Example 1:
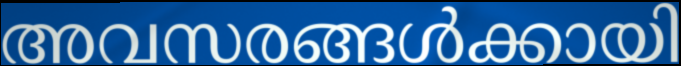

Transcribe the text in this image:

അവസരങ്ങൾക്കായി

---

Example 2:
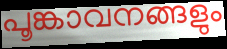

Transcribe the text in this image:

പൂങ്കാവനങ്ങളും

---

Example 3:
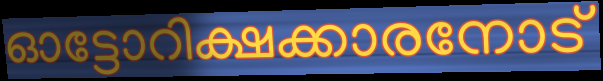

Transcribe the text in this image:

ഓട്ടോറിക്ഷക്കാരനോട്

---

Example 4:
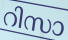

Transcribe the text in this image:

റിസാ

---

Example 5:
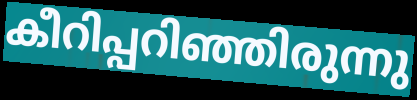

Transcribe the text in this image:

കീറിപ്പറിഞ്ഞിരുന്നു